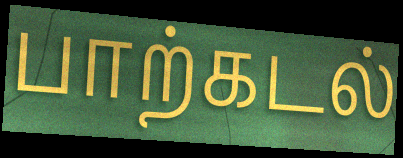
பாற்கடல்